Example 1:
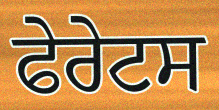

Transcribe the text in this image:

ਫੇਰੇਟਸ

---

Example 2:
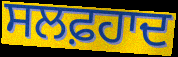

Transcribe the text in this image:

ਸਲਫ਼ਹਾਦ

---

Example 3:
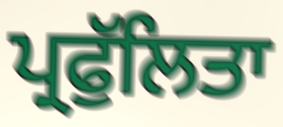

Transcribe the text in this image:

ਪ੍ਰਫੁੱਲਿਤਾ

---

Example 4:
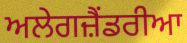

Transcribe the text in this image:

ਅਲੇਗਜ਼ੈਂਡਰੀਆ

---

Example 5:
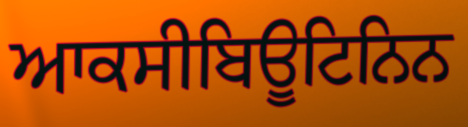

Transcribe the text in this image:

ਆਕਸੀਬਿਊਟਿਨਿਨ